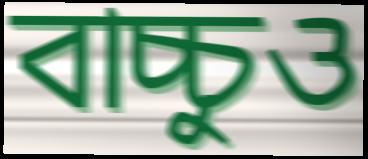
বাচ্চুও